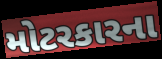
મોટરકારના